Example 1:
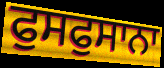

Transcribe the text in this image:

ਫੁਸਫੁਸਾਨਾ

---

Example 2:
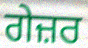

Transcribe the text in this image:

ਗੇਜ਼ਰ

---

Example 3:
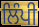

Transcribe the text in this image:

ਲਿੰਪੀ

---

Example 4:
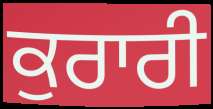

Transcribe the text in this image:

ਕੁਰਾਰੀ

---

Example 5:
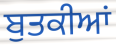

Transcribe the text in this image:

ਬੁਤਕੀਆਂ